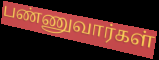
பண்ணுவார்கள்